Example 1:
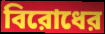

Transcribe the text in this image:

বিরোধের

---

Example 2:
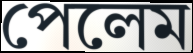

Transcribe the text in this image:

পেলেম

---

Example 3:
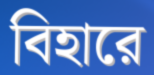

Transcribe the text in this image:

বিহারে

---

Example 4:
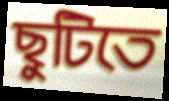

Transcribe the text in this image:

ছুটিতে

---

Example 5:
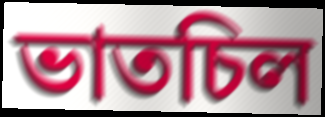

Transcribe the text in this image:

ভাতচিল